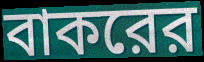
বাকরের